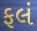
ફલં